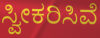
ಸ್ವೀಕರಿಸಿವೆ